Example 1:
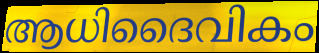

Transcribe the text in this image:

ആധിദൈവികം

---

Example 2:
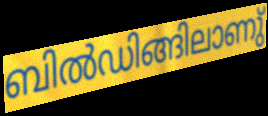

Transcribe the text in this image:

ബിൽഡിങ്ങിലാണു്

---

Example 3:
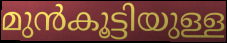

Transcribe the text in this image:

മുൻകൂട്ടിയുള്ള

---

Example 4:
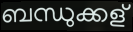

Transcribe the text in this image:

ബന്ധുക്കള്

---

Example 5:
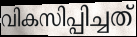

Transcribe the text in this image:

വികസിപ്പിച്ചത്